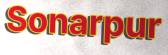
Sonarpur